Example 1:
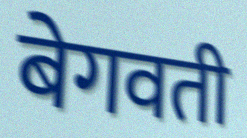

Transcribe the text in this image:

बेगवती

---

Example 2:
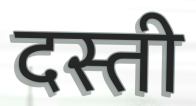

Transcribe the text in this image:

दस्ती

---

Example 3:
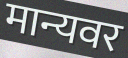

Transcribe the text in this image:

मान्‍यवर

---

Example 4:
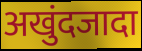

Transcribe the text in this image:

अखुंदजादा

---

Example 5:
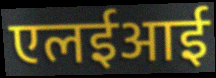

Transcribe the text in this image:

एलईआई